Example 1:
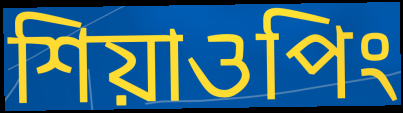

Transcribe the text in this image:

শিয়াওপিং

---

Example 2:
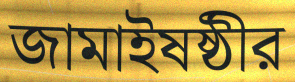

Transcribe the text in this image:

জামাইষষ্ঠীর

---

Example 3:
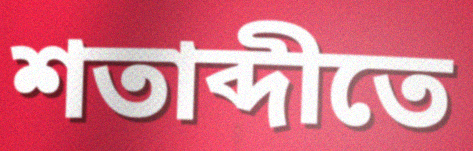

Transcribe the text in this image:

শতাব্দীতে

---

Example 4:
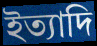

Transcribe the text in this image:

ইত্যাদি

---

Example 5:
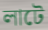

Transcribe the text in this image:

লাটে